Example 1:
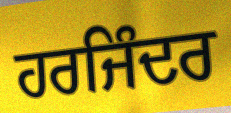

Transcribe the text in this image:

ਹਰਜਿੰਦਰ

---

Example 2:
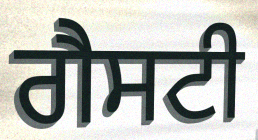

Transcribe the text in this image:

ਗੈਸਟੀ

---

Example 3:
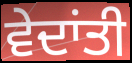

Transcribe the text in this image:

ਵੇਦਾਂਤੀ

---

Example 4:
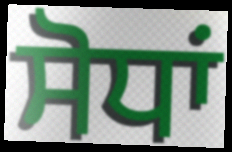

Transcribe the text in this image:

ਸੋਧਾਂ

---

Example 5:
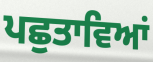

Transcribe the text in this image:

ਪਛੁਤਾਵਿਆਂ